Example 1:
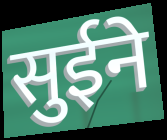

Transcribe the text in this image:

सुईने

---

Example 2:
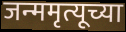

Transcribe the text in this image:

जन्ममृत्यूच्या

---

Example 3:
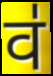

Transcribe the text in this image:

व॑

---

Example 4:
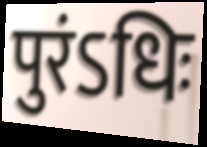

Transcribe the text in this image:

पुरंऽधिः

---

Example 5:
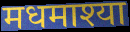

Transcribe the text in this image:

मधमाश्‍या